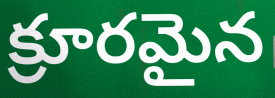
క్రూరమైన